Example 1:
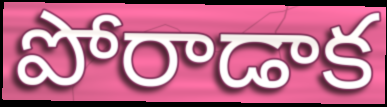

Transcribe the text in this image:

పోరాడాక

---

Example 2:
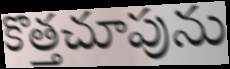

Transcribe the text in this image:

కొత్తచూపును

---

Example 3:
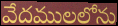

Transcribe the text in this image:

వేదములలోను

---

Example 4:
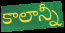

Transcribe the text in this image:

కాలాన్నీ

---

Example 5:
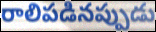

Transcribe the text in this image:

రాలిపడినప్పుడు